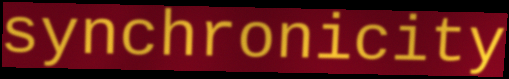
synchronicity